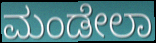
ಮಂಡೇಲಾ